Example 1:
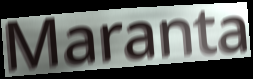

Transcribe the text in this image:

Maranta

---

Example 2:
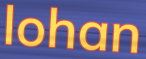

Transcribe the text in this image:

lohan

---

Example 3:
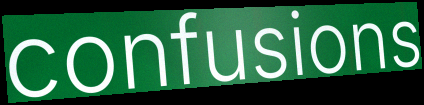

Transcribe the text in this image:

confusions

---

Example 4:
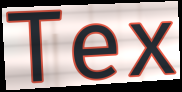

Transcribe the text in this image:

Tex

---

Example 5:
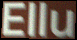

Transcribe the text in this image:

Ellu